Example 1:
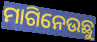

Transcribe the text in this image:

ମାଗିନେଉଛୁ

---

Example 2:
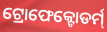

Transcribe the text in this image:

ଟ୍ରୋଫେକ୍ଟୋଡର୍ମ୍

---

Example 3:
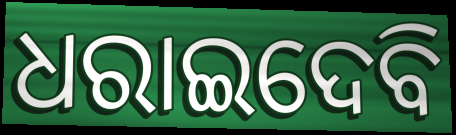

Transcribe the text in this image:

ଧରାଇଦେବି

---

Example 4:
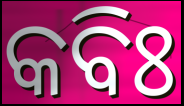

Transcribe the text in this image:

କବିଃ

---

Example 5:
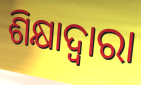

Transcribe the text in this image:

ଶିକ୍ଷାଦ୍ୱାରା